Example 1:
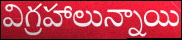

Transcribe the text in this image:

విగ్రహాలున్నాయి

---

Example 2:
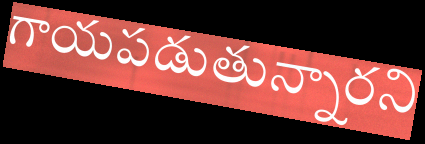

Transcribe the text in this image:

గాయపడుతున్నారని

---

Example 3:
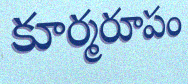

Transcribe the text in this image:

కూర్మరూపం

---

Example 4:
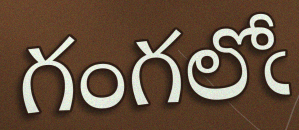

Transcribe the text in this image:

గంగలోఁ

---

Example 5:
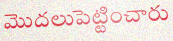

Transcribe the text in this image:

మొదలుపెట్టించారు